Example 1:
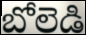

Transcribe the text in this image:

బోలెడి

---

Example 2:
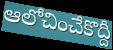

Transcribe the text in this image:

ఆలోచించేకొద్దీ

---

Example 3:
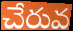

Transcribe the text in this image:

చేరువ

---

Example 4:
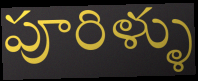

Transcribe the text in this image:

పూరిళ్ళు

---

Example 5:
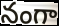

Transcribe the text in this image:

నంగా